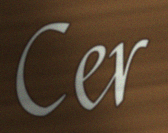
Cer